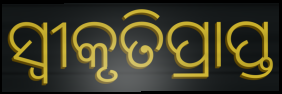
ସ୍ୱୀକୃତିପ୍ରାପ୍ତ